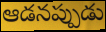
ఆడనప్పుడు